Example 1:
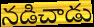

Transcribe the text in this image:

నడిచాడు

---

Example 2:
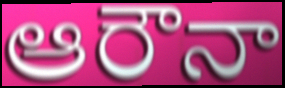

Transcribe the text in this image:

ఆరౌనా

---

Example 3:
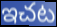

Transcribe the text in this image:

ఇచట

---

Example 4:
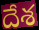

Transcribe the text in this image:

దేశ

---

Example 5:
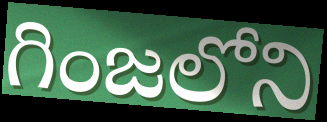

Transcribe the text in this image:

గింజలోని